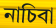
নাচিবা